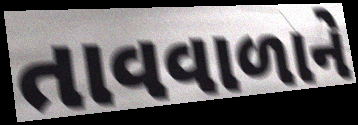
તાવવાળાને